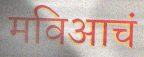
मविआचं